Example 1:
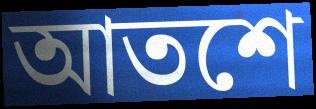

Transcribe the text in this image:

আতশে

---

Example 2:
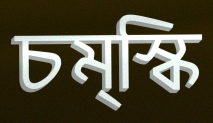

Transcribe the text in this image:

চম্‌স্কি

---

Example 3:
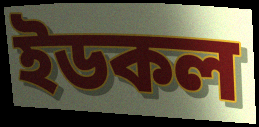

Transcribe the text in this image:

ইডকল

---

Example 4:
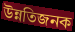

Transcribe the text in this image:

উন্নতিজনক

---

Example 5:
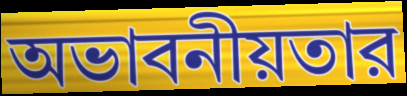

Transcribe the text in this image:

অভাবনীয়তার